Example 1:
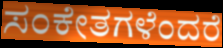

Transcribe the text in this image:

ಸಂಕೇತಗಳೆಂದರೆ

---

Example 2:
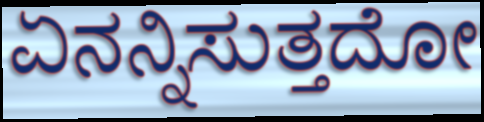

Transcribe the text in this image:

ಏನನ್ನಿಸುತ್ತದೋ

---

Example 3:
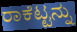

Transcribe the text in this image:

ರಾಕೆಟ್ಟನ್ನು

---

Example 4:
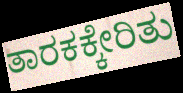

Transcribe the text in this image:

ತಾರಕಕ್ಕೇರಿತು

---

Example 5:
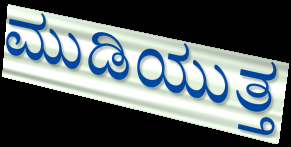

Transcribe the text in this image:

ಮುಡಿಯುತ್ತ